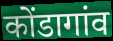
कोंडागांव